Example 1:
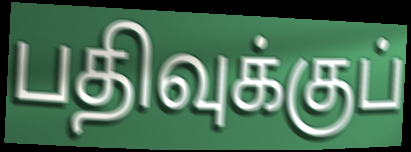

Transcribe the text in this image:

பதிவுக்குப்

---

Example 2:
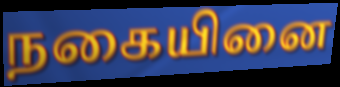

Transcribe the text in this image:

நகையினை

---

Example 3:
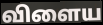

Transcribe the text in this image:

விளைய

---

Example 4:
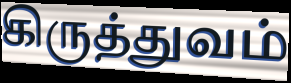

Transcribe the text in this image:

கிருத்துவம்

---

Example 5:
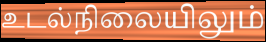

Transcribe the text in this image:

உடல்நிலையிலும்